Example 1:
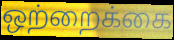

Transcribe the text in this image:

ஒற்றைக்கை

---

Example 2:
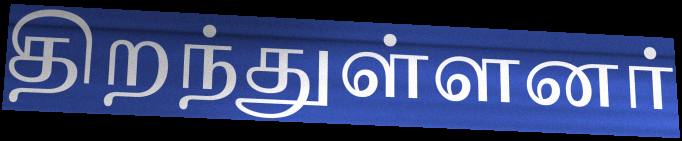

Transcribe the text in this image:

திறந்துள்ளனர்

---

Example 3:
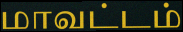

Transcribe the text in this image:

மாவட்டம்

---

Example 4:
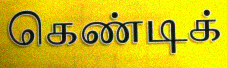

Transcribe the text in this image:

கெண்டிக்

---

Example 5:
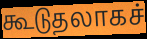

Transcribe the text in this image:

கூடுதலாகச்